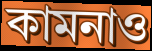
কামনাও